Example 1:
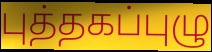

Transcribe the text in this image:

புத்தகப்புழு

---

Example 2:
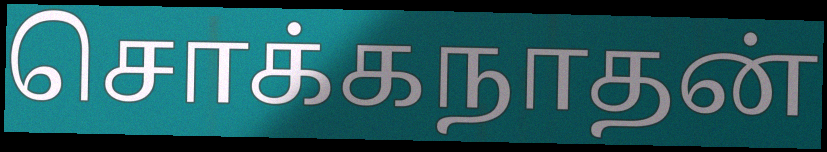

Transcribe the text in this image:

சொக்கநாதன்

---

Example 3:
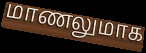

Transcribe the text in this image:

மாணலுமாக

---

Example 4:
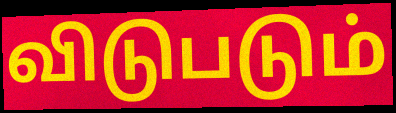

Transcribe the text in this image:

விடுபடும்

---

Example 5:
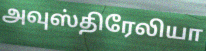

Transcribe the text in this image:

அவுஸ்திரேலியா